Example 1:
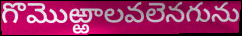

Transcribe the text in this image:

గొమొఱ్ఱాలవలెనగును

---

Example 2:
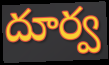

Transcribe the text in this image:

దూర్వ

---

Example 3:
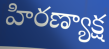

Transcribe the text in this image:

హిరణ్యాక్ష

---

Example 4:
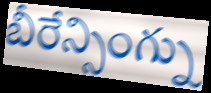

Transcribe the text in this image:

బీరేన్సింగ్ను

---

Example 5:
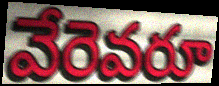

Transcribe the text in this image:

వేరెవరూ